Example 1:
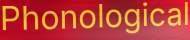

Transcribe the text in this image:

Phonological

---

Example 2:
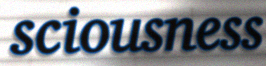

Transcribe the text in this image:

sciousness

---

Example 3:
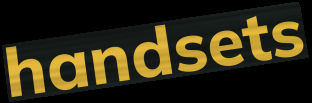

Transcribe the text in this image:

handsets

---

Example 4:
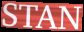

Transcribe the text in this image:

STAN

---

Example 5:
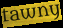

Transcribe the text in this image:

tawny